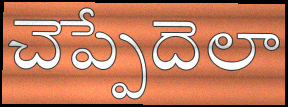
చెప్పేదెలా